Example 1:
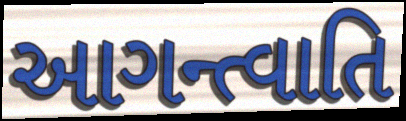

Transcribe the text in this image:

આગન્ત્વાતિ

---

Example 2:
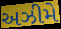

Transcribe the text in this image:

અઝીમે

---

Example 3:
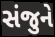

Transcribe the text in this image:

સંજુને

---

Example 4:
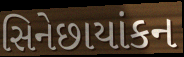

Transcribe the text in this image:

સિનેછાયાંકન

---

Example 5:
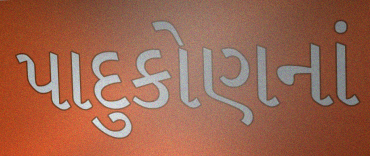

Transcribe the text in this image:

પાદુકોણનાં